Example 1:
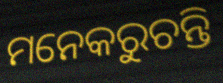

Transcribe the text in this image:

ମନେକରୁଚନ୍ତି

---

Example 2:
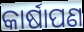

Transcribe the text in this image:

କାର୍ଷାପଣ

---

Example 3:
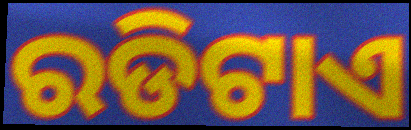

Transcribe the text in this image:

ରଡିଟାଏ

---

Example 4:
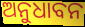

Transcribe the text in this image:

ଅନୁଧାବନ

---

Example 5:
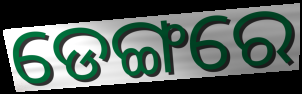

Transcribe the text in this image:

ଡେଙ୍ଗରେ